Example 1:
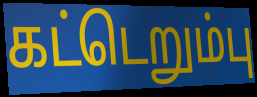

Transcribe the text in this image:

கட்டெறும்பு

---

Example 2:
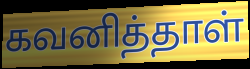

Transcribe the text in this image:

கவனித்தாள்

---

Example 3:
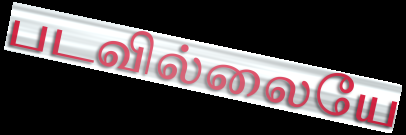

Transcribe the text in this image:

படவில்லையே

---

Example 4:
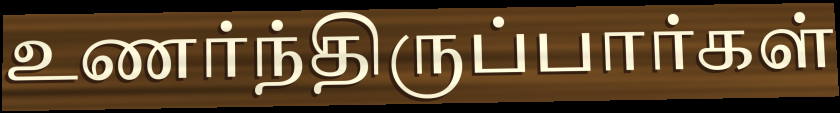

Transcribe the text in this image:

உணர்ந்திருப்பார்கள்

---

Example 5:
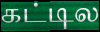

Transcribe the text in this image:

கட்டில